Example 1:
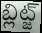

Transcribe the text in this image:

బ్లిట్జ్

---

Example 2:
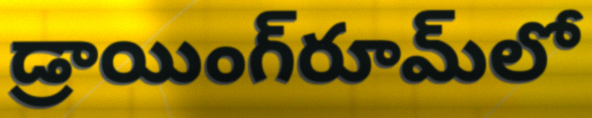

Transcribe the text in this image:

డ్రాయింగ్‌రూమ్‌లో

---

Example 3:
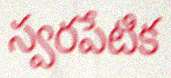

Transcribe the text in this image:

స్వరపేటిక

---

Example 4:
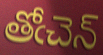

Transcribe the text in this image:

తోఁచెన్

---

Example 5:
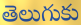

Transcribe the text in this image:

తెలుగుకు